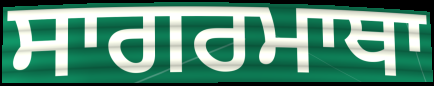
ਸਾਗਰਮਾਥਾ